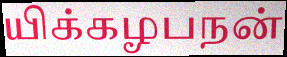
யிக்கழபநன்